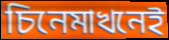
চিনেমাখনেই